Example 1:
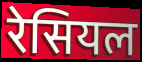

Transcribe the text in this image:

रेसियल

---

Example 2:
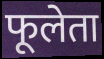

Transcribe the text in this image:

फूलेता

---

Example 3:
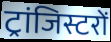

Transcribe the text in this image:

ट्रांजिस्टरों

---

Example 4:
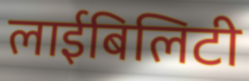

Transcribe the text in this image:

लाईबिलिटी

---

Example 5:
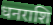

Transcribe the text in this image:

धनराशि